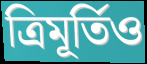
ত্ৰিমূৰ্তিও